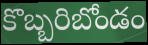
కొబ్బరిబోండం